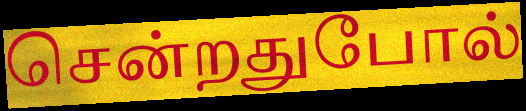
சென்றதுபோல்